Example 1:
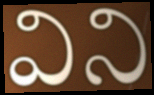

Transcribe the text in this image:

విని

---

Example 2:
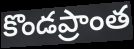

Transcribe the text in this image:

కొండప్రాంత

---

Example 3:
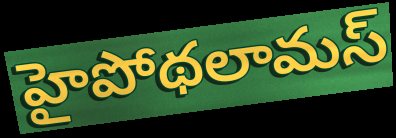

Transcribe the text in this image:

హైపోథలామస్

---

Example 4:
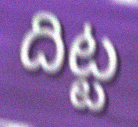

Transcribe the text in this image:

దిట్ట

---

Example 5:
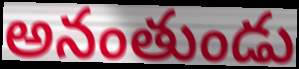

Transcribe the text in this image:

అనంతుండు